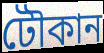
টৌকান